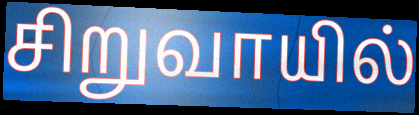
சிறுவாயில்